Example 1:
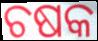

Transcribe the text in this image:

ଚଷକ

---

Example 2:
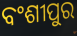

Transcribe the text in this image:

ବଂଶୀପୁର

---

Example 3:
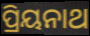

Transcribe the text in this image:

ପ୍ରିୟନାଥ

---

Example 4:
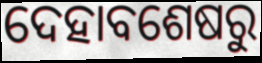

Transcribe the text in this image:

ଦେହାବଶେଷରୁ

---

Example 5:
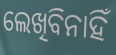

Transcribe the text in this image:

ଲେଖିବିନାହିଁ